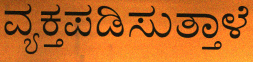
ವ್ಯಕ್ತಪಡಿಸುತ್ತಾಳೆ